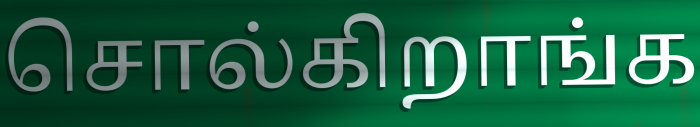
சொல்கிறாங்க